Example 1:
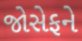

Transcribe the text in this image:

જોસેફને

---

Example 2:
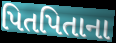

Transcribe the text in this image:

પિતપિતાના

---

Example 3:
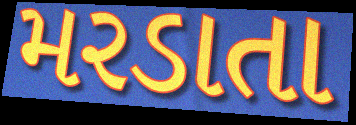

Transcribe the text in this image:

મરડાતા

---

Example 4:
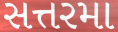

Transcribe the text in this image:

સત્તરમા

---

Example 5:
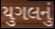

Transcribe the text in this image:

યુગલનું